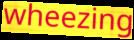
wheezing